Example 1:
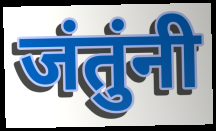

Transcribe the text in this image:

जंतुंनी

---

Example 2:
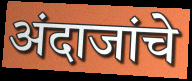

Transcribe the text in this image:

अंदाजांचे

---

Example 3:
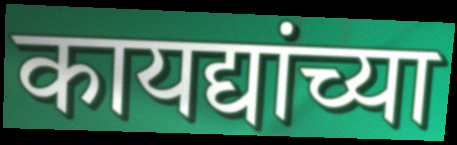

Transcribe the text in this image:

कायद्यांच्या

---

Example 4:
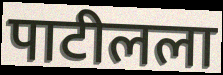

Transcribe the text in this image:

पाटीलला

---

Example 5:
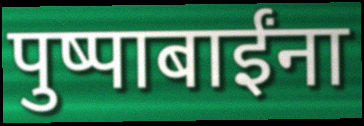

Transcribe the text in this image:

पुष्पाबाईंना